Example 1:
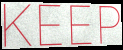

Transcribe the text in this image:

KEEP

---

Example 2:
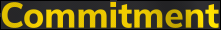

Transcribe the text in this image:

Commitment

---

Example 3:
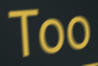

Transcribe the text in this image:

Too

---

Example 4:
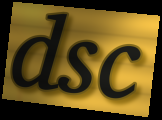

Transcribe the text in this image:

dsc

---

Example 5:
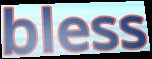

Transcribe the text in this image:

bless